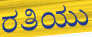
ರತಿಯು